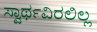
ಸ್ವಾರ್ಥವಿರಲಿಲ್ಲ